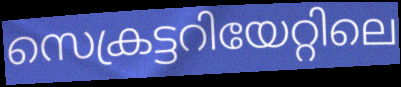
സെക്രട്ടറിയേറ്റിലെ